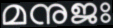
മനുജഃ